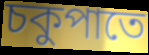
চকুপাতে